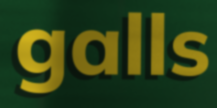
galls